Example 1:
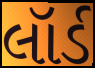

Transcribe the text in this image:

લૉર્ડ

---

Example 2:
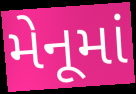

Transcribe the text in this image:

મેનૂમાં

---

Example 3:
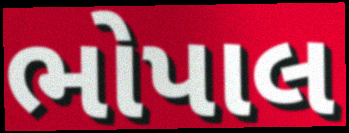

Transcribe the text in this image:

ભોપાલ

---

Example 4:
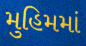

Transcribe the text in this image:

મુહિમમાં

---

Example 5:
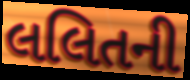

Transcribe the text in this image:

લલિતની